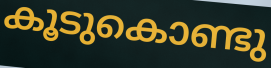
കൂടുകൊണ്ടു